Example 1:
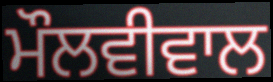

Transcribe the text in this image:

ਮੌਲਵੀਵਾਲ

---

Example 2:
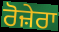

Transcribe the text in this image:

ਰੋਜ਼ੇਰਾ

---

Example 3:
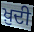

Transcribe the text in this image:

ਖ਼ੁਦੀ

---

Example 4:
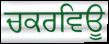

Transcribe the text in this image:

ਚਕਰਵਿਊ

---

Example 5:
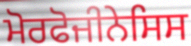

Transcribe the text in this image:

ਮੋਰਫੋਜੀਨੇਸਿਸ